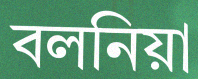
বলনিয়া